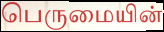
பெருமையின்